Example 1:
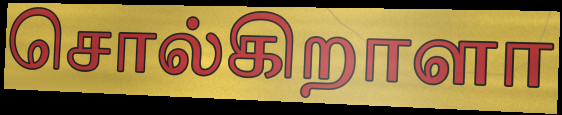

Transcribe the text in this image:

சொல்கிறாளா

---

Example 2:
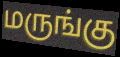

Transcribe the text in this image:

மருங்கு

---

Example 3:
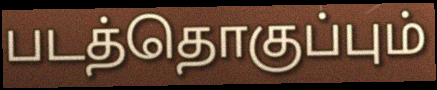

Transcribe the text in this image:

படத்தொகுப்பும்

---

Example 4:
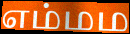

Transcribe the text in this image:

எம்மம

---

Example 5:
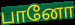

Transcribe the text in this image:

பானோ